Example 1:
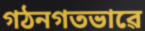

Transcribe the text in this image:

গঠনগতভাৱে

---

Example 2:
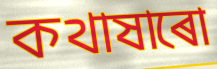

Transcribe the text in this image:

কথাষাৰো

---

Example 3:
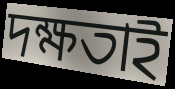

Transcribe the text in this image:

দক্ষতাই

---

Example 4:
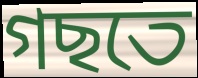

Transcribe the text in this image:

গছতে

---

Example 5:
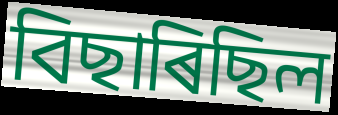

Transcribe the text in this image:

বিছাৰিছিল